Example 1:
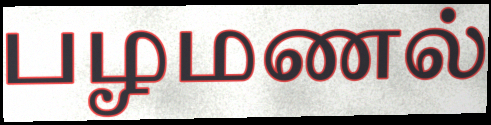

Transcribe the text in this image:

பழமணல்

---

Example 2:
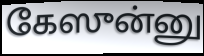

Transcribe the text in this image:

கேஸுன்னு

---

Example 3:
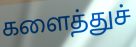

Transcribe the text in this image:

களைத்துச்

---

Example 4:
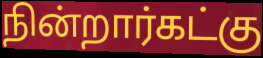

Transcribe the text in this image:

நின்றார்கட்கு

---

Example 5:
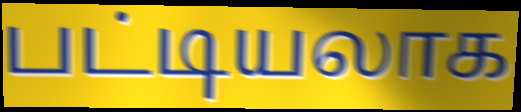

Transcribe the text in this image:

பட்டியலாக